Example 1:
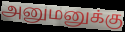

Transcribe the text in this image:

அனுமனுக்கு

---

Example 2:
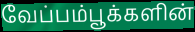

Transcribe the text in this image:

வேப்பம்பூக்களின்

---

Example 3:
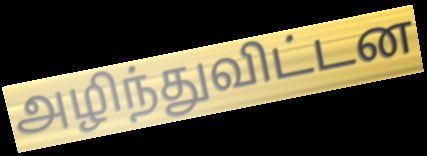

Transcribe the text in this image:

அழிந்துவிட்டன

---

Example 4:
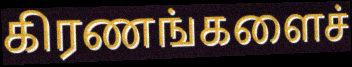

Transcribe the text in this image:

கிரணங்களைச்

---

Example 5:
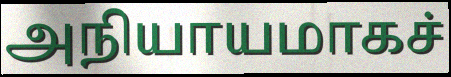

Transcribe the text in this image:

அநியாயமாகச்